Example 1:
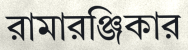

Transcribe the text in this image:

রামারঞ্জিকার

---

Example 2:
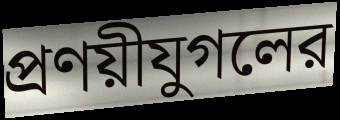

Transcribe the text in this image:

প্রণয়ীযুগলের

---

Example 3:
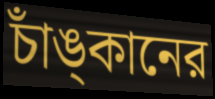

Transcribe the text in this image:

চাঁঙ্‌কানের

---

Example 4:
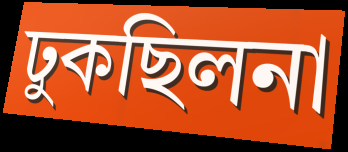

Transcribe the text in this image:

ঢুকছিলনা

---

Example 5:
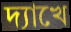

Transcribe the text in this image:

দ্যাখে